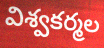
విశ్వకర్మల